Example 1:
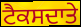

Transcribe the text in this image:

ਟੈਕਸਦਾਤੇ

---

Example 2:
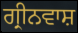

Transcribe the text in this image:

ਗ੍ਰੀਨਵਾਸ਼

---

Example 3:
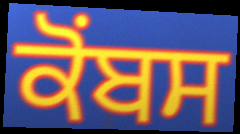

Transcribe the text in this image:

ਕੋਂਬਸ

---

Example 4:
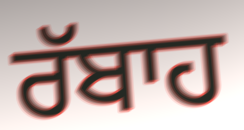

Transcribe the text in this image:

ਰੱਬਾਹ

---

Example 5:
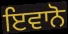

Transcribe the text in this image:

ਇਵਾਨੋ